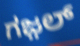
ಗಜ಼ಲ್